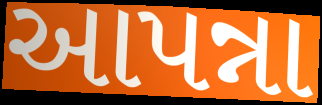
આપન્ના